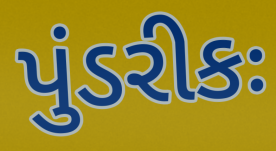
પુંડરીકઃ